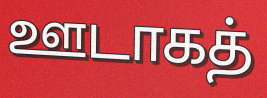
ஊடாகத்